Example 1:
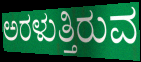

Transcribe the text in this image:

ಅರಳುತ್ತಿರುವ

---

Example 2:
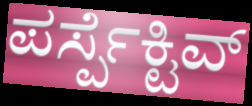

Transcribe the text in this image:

ಪರ್ಸ್ಪೆಕ್ಟಿವ್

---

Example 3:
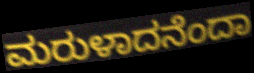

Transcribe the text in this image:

ಮರುಳಾದನೆಂದಾ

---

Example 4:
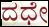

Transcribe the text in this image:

ದಧೇ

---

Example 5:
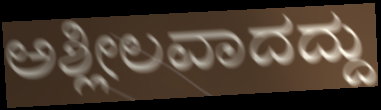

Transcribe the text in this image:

ಅಶ್ಲೀಲವಾದದ್ದು